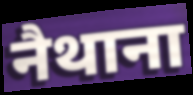
नैथाना